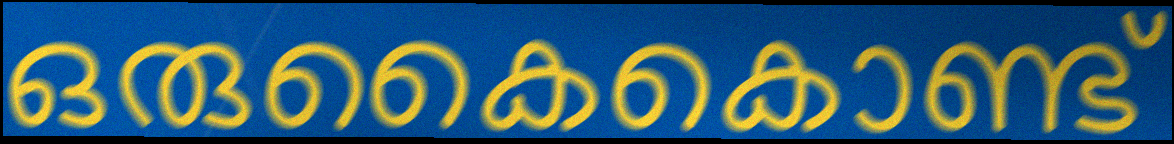
ഒരുകൈകൊണ്ട്